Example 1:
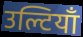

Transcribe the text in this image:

उल्टियाँ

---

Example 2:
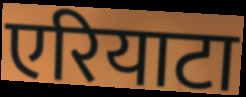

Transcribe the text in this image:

एरियाटा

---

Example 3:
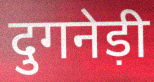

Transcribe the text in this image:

दुगनेड़ी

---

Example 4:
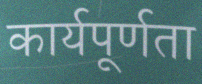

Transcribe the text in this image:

कार्यपूर्णता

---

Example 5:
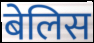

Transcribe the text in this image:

बेलिस